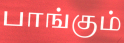
பாங்கும்